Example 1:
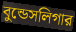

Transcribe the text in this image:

বুন্ডেসলিগার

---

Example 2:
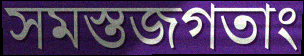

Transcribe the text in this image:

সমস্তজগতাং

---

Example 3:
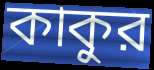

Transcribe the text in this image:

কাকুর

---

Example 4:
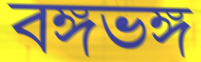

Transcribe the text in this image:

বঙ্গভঙ্গ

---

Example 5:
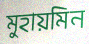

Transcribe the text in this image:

মুহায়মিন